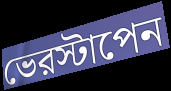
ভেরস্টাপেন